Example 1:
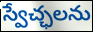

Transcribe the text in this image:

స్వేచ్ఛలను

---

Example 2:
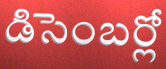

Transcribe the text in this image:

డిసెంబర్లో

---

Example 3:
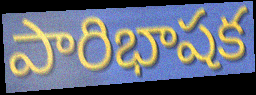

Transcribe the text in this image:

పారిభాషక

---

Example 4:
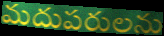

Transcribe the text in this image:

మదుపరులను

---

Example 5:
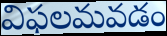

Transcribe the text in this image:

విఫలమవడం